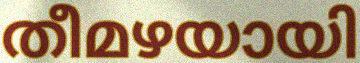
തീമഴയായി